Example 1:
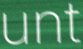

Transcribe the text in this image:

unt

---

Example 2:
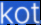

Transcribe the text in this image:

kot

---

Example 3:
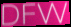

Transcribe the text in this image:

DFW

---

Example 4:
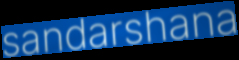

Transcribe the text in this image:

sandarshana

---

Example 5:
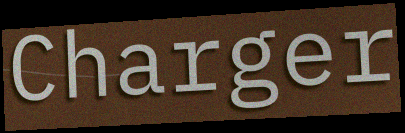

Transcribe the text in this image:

Charger